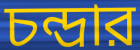
চন্দ্রার